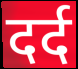
दर्द